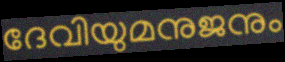
ദേവിയുമനുജനും